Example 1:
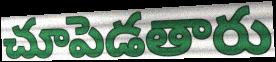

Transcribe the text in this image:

చూపెడతారు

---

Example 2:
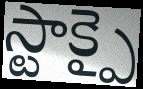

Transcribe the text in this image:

స్టాక్పై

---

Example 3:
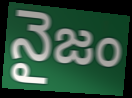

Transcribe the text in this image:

నైజం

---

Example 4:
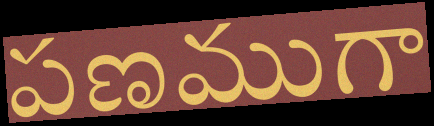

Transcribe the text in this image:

పణముగా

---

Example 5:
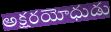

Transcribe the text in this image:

అక్షరయోధుడు